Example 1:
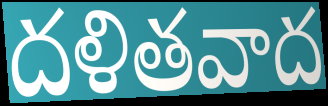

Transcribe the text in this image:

దళితవాద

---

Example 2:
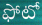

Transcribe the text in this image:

ఫోటో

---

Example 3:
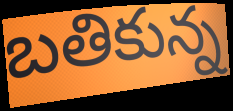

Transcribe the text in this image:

బతికున్న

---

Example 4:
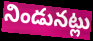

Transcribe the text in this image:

నిండునట్లు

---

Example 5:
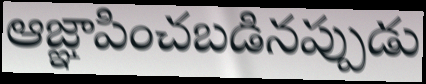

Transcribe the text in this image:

ఆజ్ఞాపించబడినప్పుడు